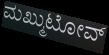
ಮಖ್ಮುಟೋವ್